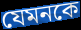
যেমনকে